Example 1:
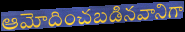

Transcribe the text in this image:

ఆమోదించబడినవానిగా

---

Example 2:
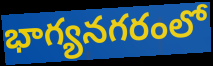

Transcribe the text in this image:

భాగ్యనగరంలో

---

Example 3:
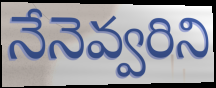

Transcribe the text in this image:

నేనెవ్వరిని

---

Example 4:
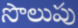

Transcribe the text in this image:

సొలుపు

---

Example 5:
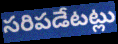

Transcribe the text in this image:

సరిపడేటట్లు